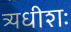
त्र्यधीशः